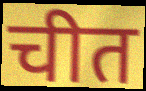
चीत